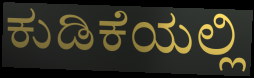
ಕುಡಿಕೆಯಲ್ಲಿ